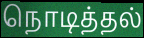
நொடித்தல்